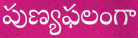
పుణ్యఫలంగా